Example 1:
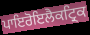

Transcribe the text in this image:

ਪਾਇਰੋਇਲੈਕਟ੍ਰਿਕ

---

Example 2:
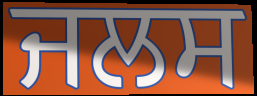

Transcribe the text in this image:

ਜਲਸ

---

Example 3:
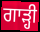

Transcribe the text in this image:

ਗਾੜ੍ਹੀ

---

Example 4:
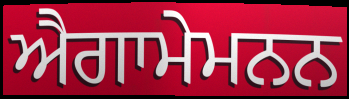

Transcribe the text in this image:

ਐਗਾਮੇਮਨਨ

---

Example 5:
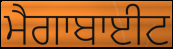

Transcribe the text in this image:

ਮੈਗਾਬਾਈਟ